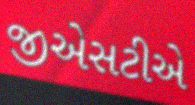
જીએસટીએ